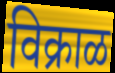
विक्राळ